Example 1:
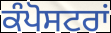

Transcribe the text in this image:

ਕੰਪੋਸਟਰਾਂ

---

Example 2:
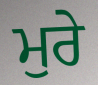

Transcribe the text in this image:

ਮੁਰੇ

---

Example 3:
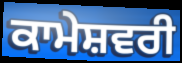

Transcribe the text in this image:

ਕਾਮੇਸ਼ਵਰੀ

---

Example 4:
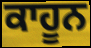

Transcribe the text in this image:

ਕਾਹੂਨ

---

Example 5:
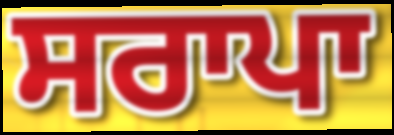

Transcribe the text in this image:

ਸਰਾਪਾ